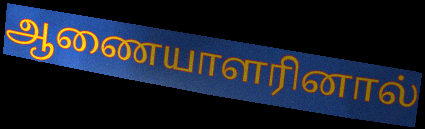
ஆணையாளரினால்